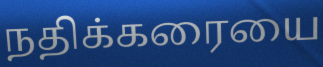
நதிக்கரையை